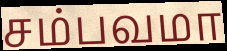
சம்பவமா